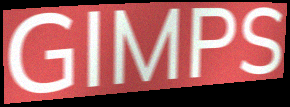
GIMPS